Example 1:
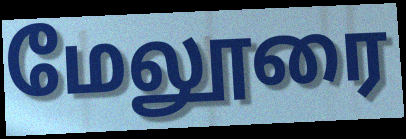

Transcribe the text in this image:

மேலூரை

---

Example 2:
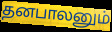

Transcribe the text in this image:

தனபாலனும்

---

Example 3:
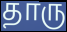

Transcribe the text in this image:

தாரு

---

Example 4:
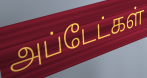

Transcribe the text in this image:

அப்டேட்கள்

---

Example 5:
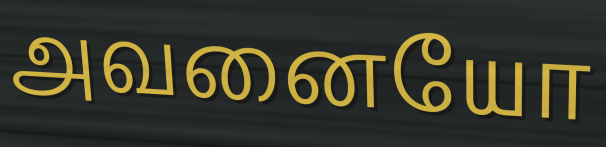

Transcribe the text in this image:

அவனையோ